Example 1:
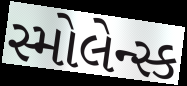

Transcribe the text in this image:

સ્મોલેન્સ્ક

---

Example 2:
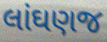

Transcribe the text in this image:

લાંઘણજ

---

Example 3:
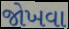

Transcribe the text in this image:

જોખવા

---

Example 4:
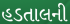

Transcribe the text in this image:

હડતાલની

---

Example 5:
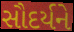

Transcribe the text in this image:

સૌદર્યને